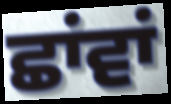
ਛਾਂਵਾਂ